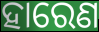
ହାରେଣ